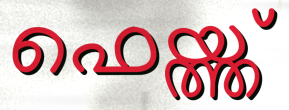
ഫെയ്ത്ത്